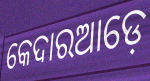
କେଦାରଆଡ଼େ